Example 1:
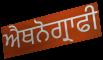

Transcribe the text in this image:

ਐਥਨੋਗ੍ਰਾਫੀ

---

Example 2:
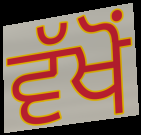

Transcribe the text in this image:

ਵੱਖੋਂ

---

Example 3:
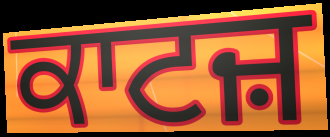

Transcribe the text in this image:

ਕਾਟਜ਼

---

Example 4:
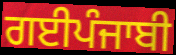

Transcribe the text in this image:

ਗਈਪੰਜਾਬੀ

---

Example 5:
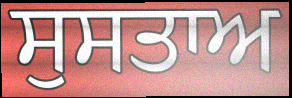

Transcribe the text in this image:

ਸੁਸਤਾਅ